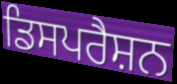
ਡਿਸਪਰੈਸ਼ਨ